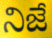
నిజే